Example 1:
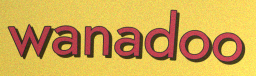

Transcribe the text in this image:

wanadoo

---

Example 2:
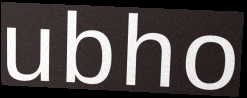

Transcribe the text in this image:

ubho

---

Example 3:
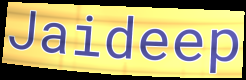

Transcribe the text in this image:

Jaideep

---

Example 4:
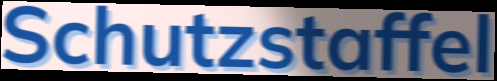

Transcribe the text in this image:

Schutzstaffel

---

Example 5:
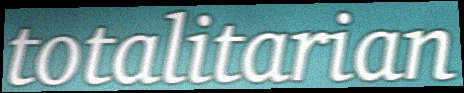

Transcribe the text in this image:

totalitarian